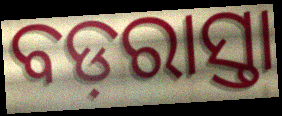
ବଡ଼ରାସ୍ତା